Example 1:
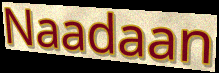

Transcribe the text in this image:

Naadaan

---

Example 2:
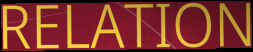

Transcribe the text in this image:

RELATION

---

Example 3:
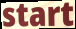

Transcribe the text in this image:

start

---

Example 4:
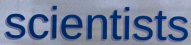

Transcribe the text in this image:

scientists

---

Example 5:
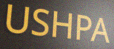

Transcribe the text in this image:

USHPA